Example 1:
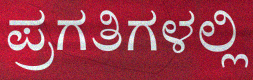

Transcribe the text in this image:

ಪ್ರಗತಿಗಳಲ್ಲಿ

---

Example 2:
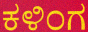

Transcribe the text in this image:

ಕಳಿಂಗ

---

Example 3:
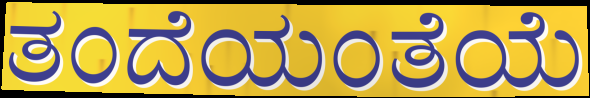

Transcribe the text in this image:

ತಂದೆಯಂತೆಯೆ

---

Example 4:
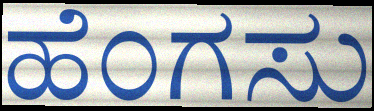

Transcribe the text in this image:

ಹೆಂಗಸು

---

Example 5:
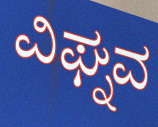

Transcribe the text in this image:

ವಿಘ್ನವ